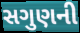
સગુણની